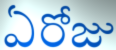
ఏరోజు